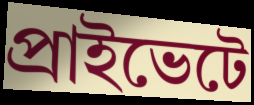
প্রাইভেটে